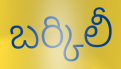
బర్కిలీ